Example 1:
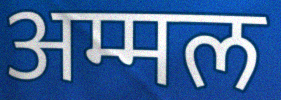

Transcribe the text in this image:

अम्मल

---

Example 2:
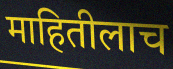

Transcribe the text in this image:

माहितीलाच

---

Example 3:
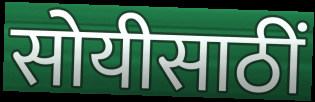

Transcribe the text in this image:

सोयीसाठीं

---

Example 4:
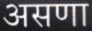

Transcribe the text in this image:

असणा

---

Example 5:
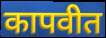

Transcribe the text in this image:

कापवीत